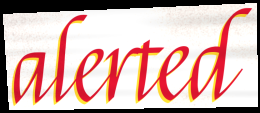
alerted